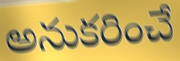
అనుకరించే